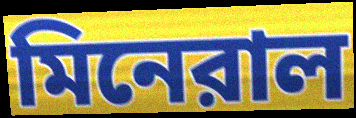
মিনেরাল